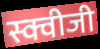
स्क्वीजी